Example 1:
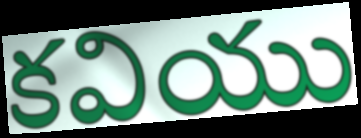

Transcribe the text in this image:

కవియు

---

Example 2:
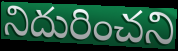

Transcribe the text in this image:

నిదురించని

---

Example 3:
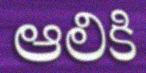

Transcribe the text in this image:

ఆలికి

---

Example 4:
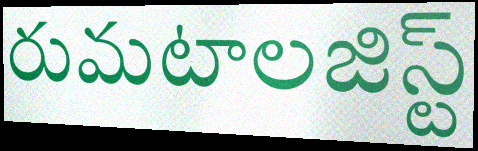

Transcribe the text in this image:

రుమటాలజిస్ట్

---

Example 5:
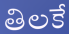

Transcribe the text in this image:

తిలకే